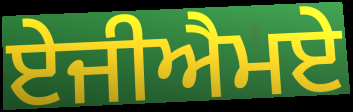
ਏਜੀਐਮਏ